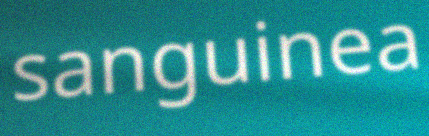
sanguinea